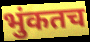
भुंकतच